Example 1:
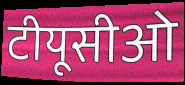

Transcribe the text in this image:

टीयूसीओ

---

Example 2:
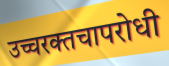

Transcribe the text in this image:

उच्चरक्तचापरोधी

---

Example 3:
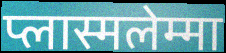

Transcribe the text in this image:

प्लास्मलेम्मा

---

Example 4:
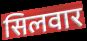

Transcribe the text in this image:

सिलवार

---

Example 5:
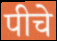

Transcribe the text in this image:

पीचे